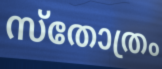
സ്തോത്രം